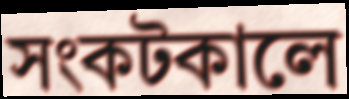
সংকটকালে